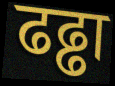
ढढ्ढा